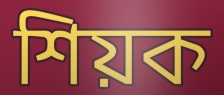
শিয়ক